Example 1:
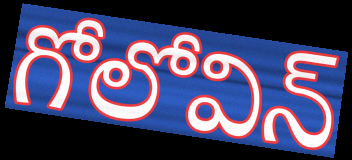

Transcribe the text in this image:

గోలోవిన్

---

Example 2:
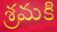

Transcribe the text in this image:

శ్రమకి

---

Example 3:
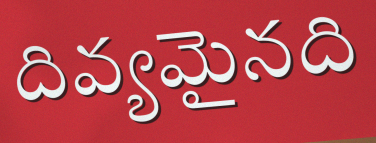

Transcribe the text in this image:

దివ్యమైనది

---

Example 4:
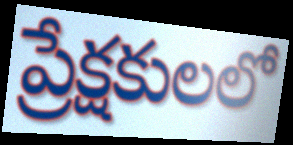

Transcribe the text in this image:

ప్రేక్షకులలో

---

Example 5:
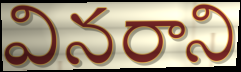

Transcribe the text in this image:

వినరాని